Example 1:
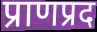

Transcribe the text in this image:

प्राणप्रद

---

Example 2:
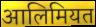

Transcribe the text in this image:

आलिमियत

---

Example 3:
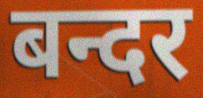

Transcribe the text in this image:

बन्दर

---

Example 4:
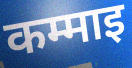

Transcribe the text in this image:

कम्माइ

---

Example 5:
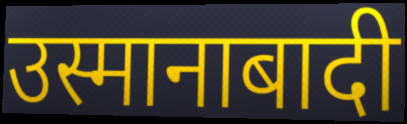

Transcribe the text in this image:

उस्मानाबादी